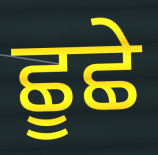
ਛੂਛੇ